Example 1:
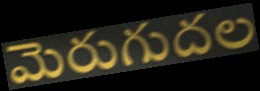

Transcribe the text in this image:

మెరుగుదల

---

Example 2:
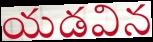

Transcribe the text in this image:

యడవిన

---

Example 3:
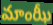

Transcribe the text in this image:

మాంఝీ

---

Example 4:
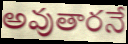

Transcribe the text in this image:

అవుతారనే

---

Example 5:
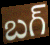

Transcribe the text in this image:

బగ్